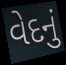
વેદનું